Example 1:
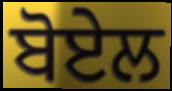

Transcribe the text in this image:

ਬੋਏਲ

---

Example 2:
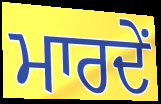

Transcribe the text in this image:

ਮਾਰਦੇਂ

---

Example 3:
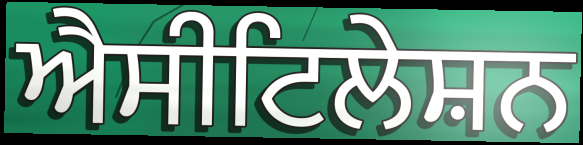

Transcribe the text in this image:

ਐਸੀਟਿਲੇਸ਼ਨ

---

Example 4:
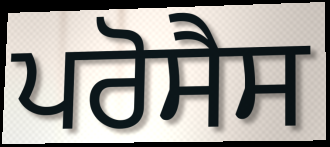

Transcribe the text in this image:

ਪਰੋਸੈਸ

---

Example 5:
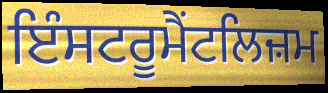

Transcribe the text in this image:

ਇੰਸਟਰੂਮੈਂਟਲਿਜ਼ਮ